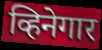
व्हिनेगार